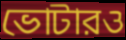
ভোটারও